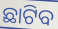
ଛାଟିବ